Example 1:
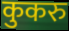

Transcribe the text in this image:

कुकरु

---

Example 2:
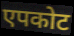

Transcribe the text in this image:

एपकोट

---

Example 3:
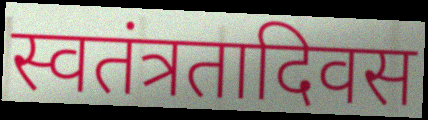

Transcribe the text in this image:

स्वतंत्रतादिवस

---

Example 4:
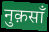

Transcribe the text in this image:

नुक़साँ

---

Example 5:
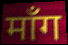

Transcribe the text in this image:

माँग